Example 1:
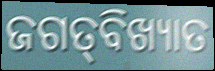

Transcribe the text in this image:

ଜଗତ୍‌ବିଖ୍ୟାତ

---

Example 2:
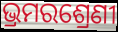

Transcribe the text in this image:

ଭ୍ରମରଶ୍ରେଣୀ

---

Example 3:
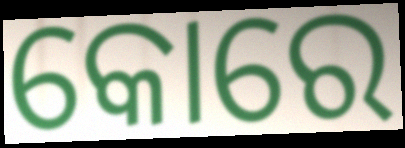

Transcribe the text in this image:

କୋରେ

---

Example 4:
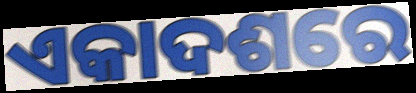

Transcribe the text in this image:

ଏକାଦଶରେ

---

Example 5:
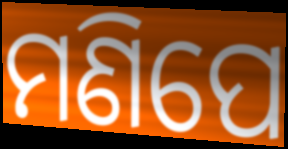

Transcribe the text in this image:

ମଣିପେ